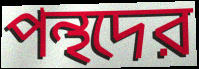
পন্থদের